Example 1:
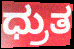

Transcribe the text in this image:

ಧ್ರುತ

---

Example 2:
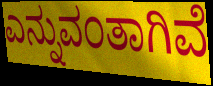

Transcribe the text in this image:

ಎನ್ನುವಂತಾಗಿವೆ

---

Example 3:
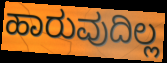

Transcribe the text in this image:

ಹಾರುವುದಿಲ್ಲ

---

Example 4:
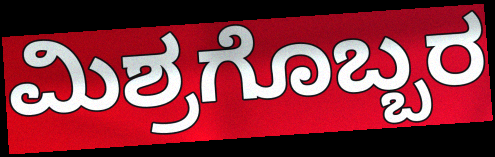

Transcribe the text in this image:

ಮಿಶ್ರಗೊಬ್ಬರ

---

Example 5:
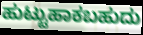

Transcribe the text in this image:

ಹುಟ್ಟುಹಾಕಬಹುದು